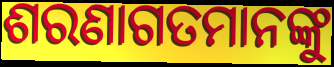
ଶରଣାଗତମାନଙ୍କୁ